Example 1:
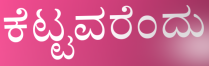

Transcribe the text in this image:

ಕೆಟ್ಟವರೆಂದು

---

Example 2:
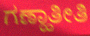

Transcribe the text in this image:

ಗಣ್ಹಾತೀತಿ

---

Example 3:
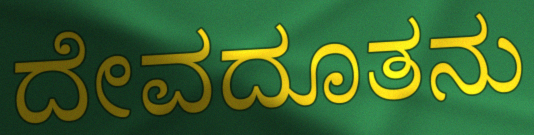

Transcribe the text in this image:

ದೇವದೂತನು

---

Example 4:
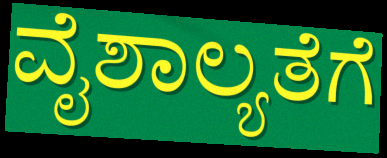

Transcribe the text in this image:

ವೈಶಾಲ್ಯತೆಗೆ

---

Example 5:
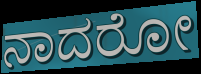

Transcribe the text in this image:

ನಾದರೋ